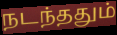
நடந்ததும்